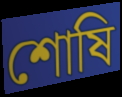
শোষি